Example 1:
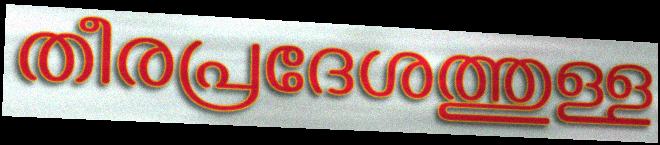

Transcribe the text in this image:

തീരപ്രദേശത്തുള്ള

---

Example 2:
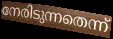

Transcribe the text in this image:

നേരിടുന്നതെന്ന്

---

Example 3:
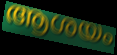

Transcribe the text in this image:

ആശയം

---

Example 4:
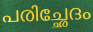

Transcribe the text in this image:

പരിച്ഛേദം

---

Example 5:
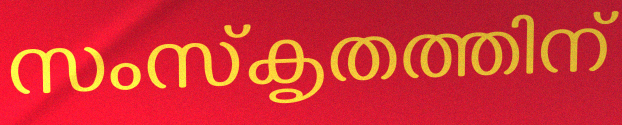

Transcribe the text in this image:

സംസ്‌കൃതത്തിന്